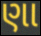
ણા